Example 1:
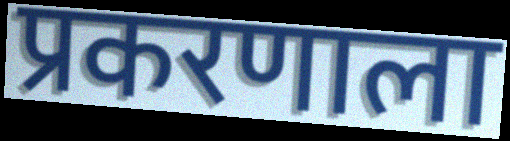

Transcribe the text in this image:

प्रकरणाला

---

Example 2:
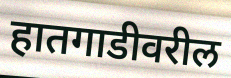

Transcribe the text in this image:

हातगाडीवरील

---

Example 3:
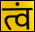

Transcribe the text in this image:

त्वं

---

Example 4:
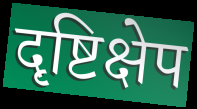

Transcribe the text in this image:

दृष्टिक्षेप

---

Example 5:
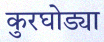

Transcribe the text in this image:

कुरघोड्या